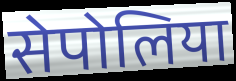
सेपोलिया